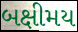
બક્ષીમય